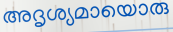
അദൃശ്യമായൊരു